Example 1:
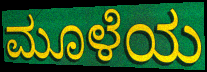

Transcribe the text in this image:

ಮೂಳೆಯ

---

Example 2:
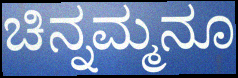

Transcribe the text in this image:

ಚಿನ್ನಮ್ಮನೂ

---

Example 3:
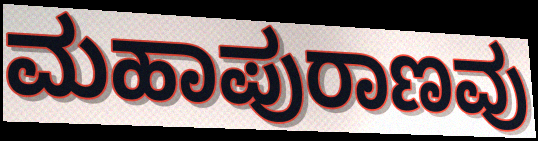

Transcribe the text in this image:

ಮಹಾಪುರಾಣವು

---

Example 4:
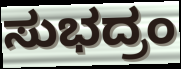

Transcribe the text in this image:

ಸುಭದ್ರಂ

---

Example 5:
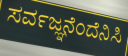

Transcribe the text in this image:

ಸರ್ವಜ್ಞನೆಂದೆನಿಸಿ